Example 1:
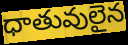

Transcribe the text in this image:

ధాతువులైన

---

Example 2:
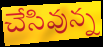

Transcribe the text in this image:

చేసివున్న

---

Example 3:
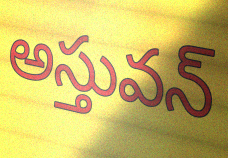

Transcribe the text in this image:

అస్తువన్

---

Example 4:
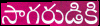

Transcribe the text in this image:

సాగరుడికి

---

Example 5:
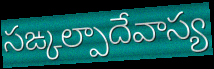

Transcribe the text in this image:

సఙ్కల్పాదేవాస్య